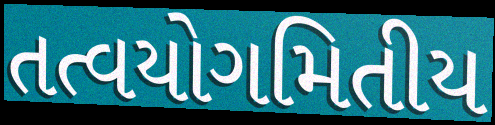
તત્વયોગમિતીય